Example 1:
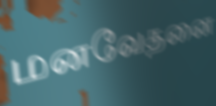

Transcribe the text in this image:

மனவேதனை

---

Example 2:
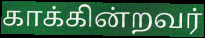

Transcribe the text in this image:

காக்கின்றவர்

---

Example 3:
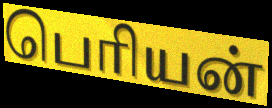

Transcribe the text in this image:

பெரியன்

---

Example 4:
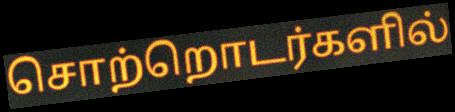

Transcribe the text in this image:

சொற்றொடர்களில்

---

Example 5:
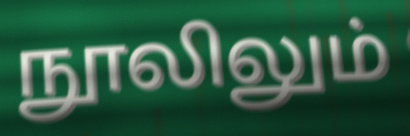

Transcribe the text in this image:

நூலிலும்